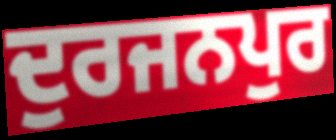
ਦੁਰਜਨਪੁਰ